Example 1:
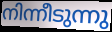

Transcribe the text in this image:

നിന്നീടുന്നു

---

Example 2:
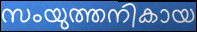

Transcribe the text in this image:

സംയുത്തനികായ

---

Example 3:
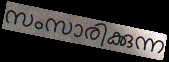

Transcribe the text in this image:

സംസാരിക്കുന്ന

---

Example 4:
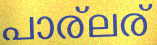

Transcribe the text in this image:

പാര്ലര്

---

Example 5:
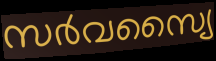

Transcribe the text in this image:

സർവസ്യൈ